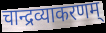
चान्द्रव्याकरणम्